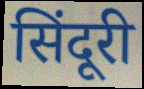
सिंदूरी